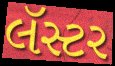
લૅસ્ટર